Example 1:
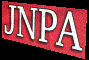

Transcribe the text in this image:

JNPA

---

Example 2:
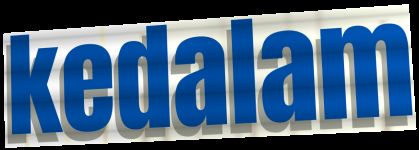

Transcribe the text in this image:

kedalam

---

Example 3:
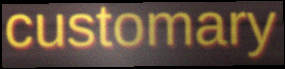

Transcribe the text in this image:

customary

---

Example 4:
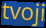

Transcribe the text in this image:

tvoji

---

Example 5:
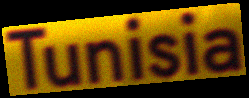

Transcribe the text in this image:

Tunisia